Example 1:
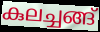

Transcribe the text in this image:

കുലച്ചങ്ങ്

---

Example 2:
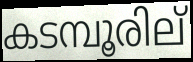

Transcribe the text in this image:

കടമ്പൂരില്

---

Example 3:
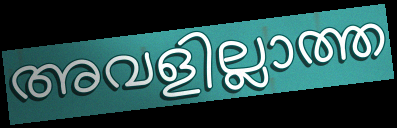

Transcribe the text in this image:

അവളില്ലാത്ത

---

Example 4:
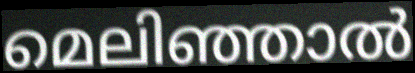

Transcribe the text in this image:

മെലിഞ്ഞാൽ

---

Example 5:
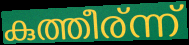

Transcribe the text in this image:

കുത്തീര്ന്ന്